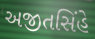
અજીતસિંહે